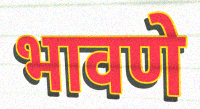
भावणे